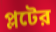
প্লটের